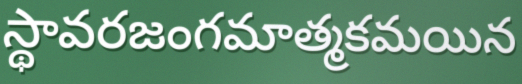
స్థావరజంగమాత్మకమయిన